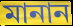
মানান